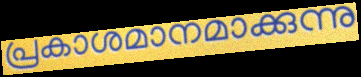
പ്രകാശമാനമാക്കുന്നു